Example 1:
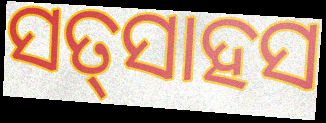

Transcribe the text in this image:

ସତ୍‌ସାହସ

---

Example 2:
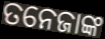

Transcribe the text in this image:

ତନେଜାଙ୍କ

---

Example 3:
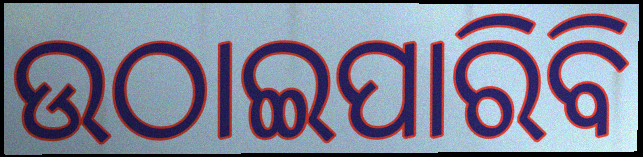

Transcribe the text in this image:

ଉଠାଇପାରିବି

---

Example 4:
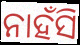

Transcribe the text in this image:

ନାହଁସି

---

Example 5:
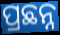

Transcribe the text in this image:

ପ୍ରଛନ୍ନ